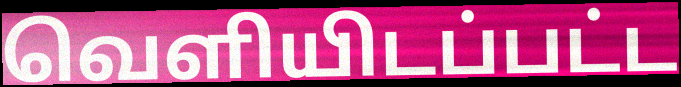
வெளியிடப்பட்ட